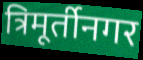
त्रिमूर्तीनगर